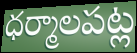
ధర్మాలపట్ల